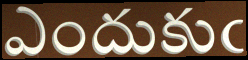
ఎందుకుఁ